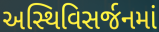
અસ્થિવિસર્જનમાં